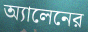
অ্যালেনের